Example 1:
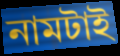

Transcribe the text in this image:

নামটাই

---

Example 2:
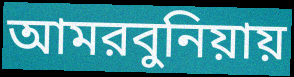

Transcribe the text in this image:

আমরবুনিয়ায়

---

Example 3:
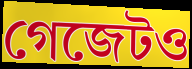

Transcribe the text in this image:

গেজেটও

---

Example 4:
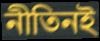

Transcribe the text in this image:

নীতিনই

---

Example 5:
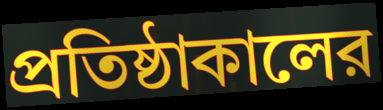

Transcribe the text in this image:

প্রতিষ্ঠাকালের